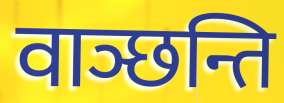
वाञ्छन्ति